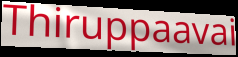
Thiruppaavai